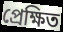
প্রেক্ষিত